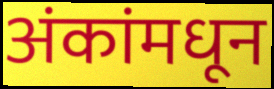
अंकांमधून